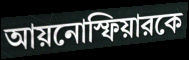
আয়নোস্ফিয়ারকে